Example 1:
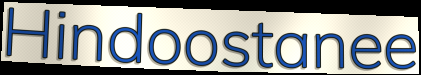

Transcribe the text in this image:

Hindoostanee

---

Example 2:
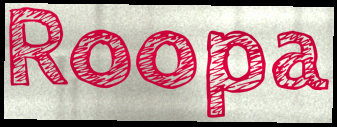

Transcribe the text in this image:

Roopa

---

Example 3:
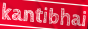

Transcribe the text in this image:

kantibhai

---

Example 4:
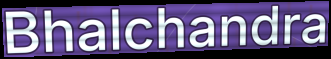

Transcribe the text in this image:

Bhalchandra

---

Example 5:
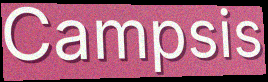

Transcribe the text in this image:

Campsis